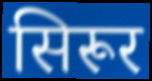
सिरूर